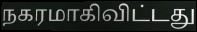
நகரமாகிவிட்டது